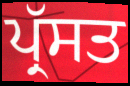
ਪ੍ਰੱਸਤ